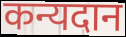
कन्यदान